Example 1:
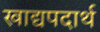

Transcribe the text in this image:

खाद्यपदार्थ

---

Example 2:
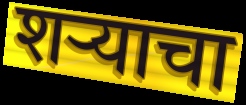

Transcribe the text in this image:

शर्‍याचा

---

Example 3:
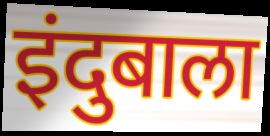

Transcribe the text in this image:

इंदुबाला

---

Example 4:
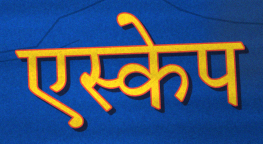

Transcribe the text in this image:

एस्केप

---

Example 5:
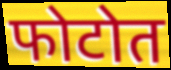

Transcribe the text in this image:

फोटोत